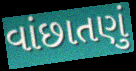
વાંછાતણું